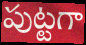
పుట్టగా